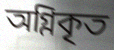
অগ্নিকৃত